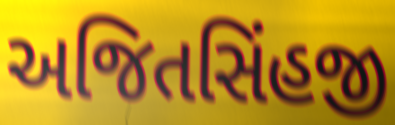
અજિતસિંહજી